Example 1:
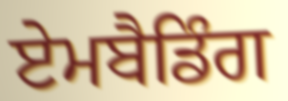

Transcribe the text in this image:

ਏਮਬੈਡਿੰਗ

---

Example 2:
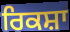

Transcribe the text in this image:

ਰਿਕਸ਼ਾ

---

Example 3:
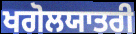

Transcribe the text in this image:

ਖਗੋਲਯਾਤਰੀ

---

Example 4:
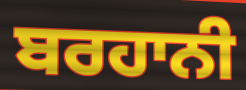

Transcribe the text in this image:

ਬਰਹਾਨੀ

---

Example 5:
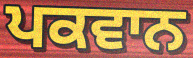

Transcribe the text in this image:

ਪਕਵਾਨ